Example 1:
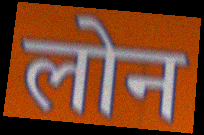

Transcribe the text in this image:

लोन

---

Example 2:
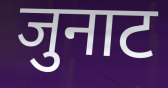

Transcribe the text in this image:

जुनाट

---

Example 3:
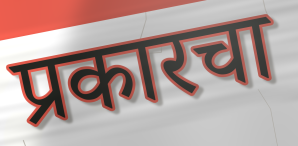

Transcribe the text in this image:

प्रकारचा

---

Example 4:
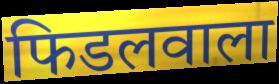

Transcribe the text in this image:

फिडलवाला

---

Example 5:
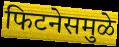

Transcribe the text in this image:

फिटनेसमुळे